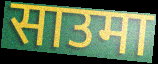
साउमा